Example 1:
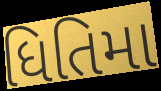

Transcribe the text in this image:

ધિતિમા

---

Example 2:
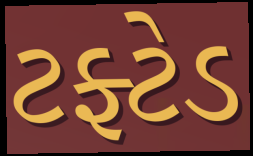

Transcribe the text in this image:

ટફ્ટેડ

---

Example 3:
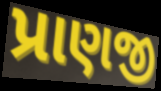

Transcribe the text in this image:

પ્રાણજી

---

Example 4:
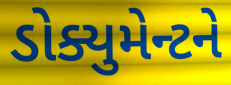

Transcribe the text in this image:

ડોક્યુમેન્ટને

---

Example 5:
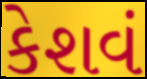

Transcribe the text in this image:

કેશવં